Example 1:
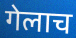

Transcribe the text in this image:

गेलाच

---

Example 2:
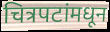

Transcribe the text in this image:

चित्रपटांमधून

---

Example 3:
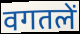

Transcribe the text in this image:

वगतलें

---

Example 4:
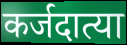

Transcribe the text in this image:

कर्जदात्या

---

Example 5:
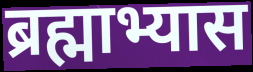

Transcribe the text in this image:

ब्रह्माभ्यास